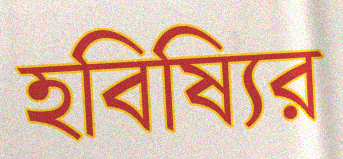
হবিষ্যির